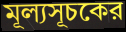
মূল্যসূচকের